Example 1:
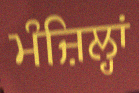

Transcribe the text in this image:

ਮੰਜ਼ਿਲ੍ਹਾਂ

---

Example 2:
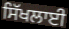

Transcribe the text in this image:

ਸਿੱਖਲਾਈ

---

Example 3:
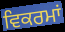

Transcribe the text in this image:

ਵਿਕਰਮਾਂ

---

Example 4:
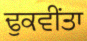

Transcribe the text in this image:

ਢੁਕਵੀਂਤਾ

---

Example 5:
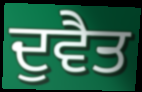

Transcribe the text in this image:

ਦੁਵੈਤ